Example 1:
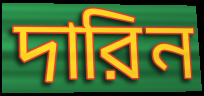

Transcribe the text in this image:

দারিন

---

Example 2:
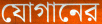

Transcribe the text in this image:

যোগানের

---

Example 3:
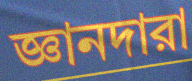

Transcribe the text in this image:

জ্ঞানদারা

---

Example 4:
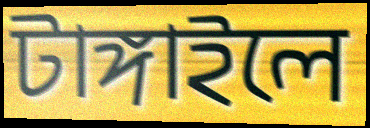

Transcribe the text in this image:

টাঙ্গাইলে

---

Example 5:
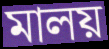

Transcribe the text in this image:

মালয়